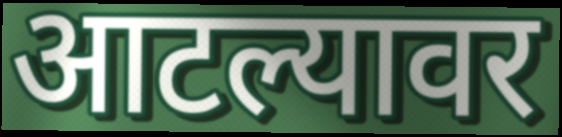
आटल्यावर